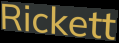
Rickett